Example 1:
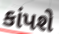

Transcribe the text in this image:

કાંપશે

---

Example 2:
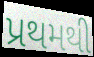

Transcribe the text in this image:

પ્રથમથી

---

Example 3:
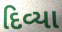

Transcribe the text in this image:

દિવ્યા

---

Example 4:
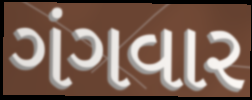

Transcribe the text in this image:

ગંગવાર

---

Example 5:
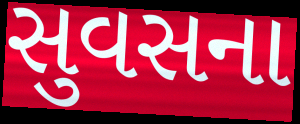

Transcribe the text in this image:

સુવસના